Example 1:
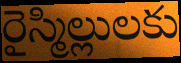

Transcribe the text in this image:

రైస్మిల్లులకు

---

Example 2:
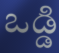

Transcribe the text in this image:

ఒడ్డి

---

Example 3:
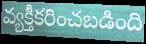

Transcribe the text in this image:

వ్యక్తీకరించబడింది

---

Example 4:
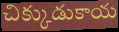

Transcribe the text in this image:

చిక్కుడుకాయ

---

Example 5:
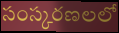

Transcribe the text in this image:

సంస్కరణలలో